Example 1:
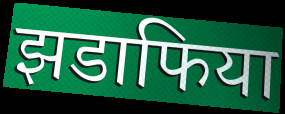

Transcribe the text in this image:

झडाफिया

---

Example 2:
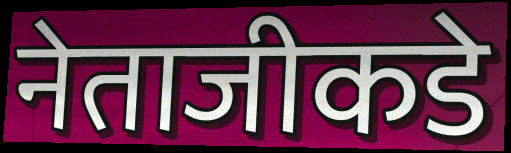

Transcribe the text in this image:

नेताजीकडे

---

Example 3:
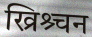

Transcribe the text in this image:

ख्रिश्र्चन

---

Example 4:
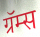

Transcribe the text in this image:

ग्रॅम्स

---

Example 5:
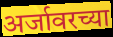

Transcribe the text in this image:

अर्जावरच्या